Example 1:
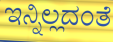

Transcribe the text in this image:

ಇನ್ನಿಲ್ಲದಂತೆ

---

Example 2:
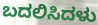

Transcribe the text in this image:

ಬದಲಿಸಿದಳು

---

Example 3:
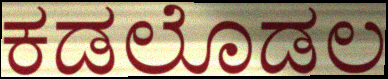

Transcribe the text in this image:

ಕಡಲೊಡಲ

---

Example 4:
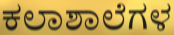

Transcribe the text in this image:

ಕಲಾಶಾಲೆಗಳ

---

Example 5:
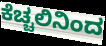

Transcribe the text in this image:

ಕೆಚ್ಚಲಿನಿಂದ